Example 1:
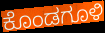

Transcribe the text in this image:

ಕೊಂಡಗೂಳಿ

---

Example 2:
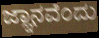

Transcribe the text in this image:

ಜ್ಞಾನವೆಂದು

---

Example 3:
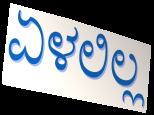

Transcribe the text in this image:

ಏಳಲಿಲ್ಲ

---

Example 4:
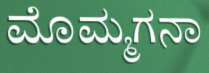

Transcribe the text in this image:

ಮೊಮ್ಮಗನಾ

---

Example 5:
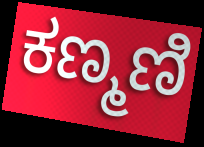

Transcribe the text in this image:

ಕಣ್ಮಣಿ